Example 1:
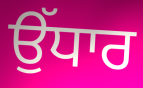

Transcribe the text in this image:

ਉੱਧਾਰ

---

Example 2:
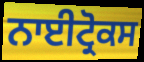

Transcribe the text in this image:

ਨਾਈਟ੍ਰੋਕਸ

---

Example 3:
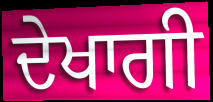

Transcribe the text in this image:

ਦੇਖਾਗੀ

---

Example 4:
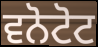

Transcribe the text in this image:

ਵਨੋਟੋਟ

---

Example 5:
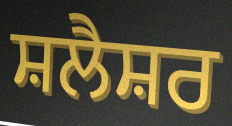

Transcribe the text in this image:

ਸ਼ਲੈਸ਼ਰ